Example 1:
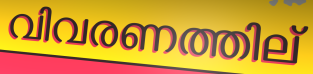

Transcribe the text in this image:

വിവരണത്തില്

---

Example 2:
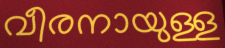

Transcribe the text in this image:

വീരനായുള്ള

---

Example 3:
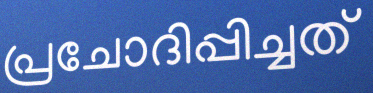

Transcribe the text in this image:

പ്രചോദിപ്പിച്ചത്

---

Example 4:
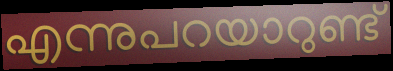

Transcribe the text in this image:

എന്നുപറയാറുണ്ട്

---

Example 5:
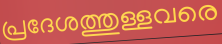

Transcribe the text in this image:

പ്രദേശത്തുള്ളവരെ